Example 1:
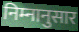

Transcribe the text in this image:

निम्‍नानुसार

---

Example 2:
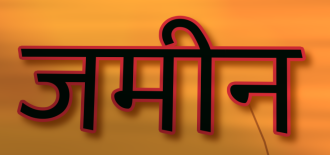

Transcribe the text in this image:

जमीन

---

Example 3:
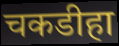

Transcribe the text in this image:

चकडीहा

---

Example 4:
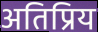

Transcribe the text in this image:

अतिप्रिय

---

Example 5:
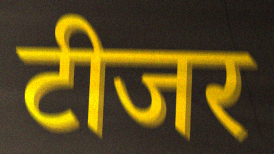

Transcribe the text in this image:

टीजर